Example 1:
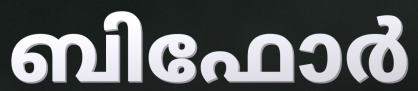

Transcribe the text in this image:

ബിഫോർ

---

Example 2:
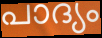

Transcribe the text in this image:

പാദ്യം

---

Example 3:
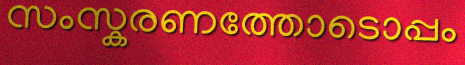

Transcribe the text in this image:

സംസ്കരണത്തോടൊപ്പം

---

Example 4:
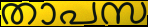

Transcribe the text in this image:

താപസ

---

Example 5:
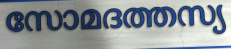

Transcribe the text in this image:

സോമദത്തസ്യ